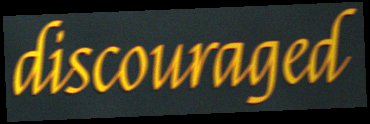
discouraged